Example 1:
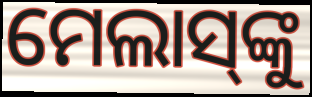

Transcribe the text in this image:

ମେଲାସ୍‌ଙ୍କୁ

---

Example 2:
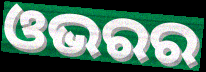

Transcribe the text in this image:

ଓଭରର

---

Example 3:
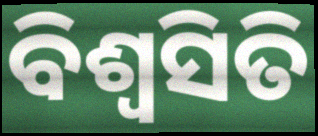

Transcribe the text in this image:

ବିଶ୍ଵସିତି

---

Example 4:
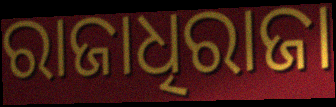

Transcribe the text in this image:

ରାଜାଧିରାଜା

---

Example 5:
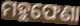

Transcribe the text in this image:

ମହୁଫେଣା